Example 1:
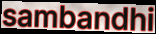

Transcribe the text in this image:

sambandhi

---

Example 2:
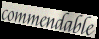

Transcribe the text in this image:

commendable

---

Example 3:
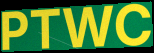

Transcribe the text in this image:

PTWC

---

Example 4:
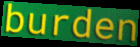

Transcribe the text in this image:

burden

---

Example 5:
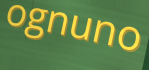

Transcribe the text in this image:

ognuno